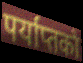
पर्याप्तको